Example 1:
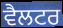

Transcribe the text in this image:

ਵੈਲਟਰ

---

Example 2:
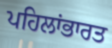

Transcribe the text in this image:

ਪਹਿਲਾਂਭਾਰਤ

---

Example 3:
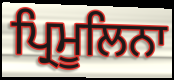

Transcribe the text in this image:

ਪ੍ਰਿਮੂਲਿਨਾ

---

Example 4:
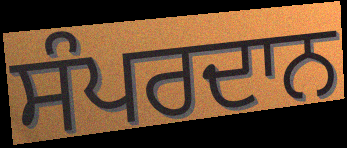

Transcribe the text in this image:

ਸੰਪਰਦਾਨ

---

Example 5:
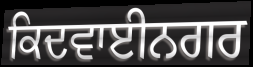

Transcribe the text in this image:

ਕਿਦਵਾਈਨਗਰ